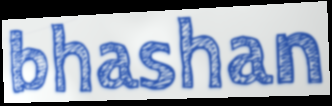
bhashan